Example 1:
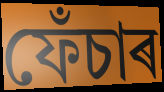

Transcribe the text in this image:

ফেঁচাৰ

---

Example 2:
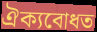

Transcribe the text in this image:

ঐক্যবোধত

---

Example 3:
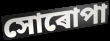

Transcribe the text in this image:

সোৰোপা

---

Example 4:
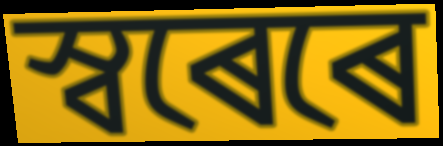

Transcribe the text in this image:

স্বৰেৰে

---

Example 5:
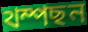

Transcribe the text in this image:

থম্পছন